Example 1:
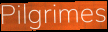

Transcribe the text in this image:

Pilgrimes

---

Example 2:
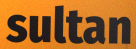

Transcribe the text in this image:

sultan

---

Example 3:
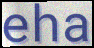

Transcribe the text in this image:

eha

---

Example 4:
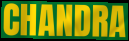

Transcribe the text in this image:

CHANDRA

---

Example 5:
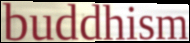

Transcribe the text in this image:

buddhism